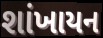
શાંખાયન